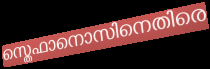
സ്തെഫാനൊസിനെതിരെ